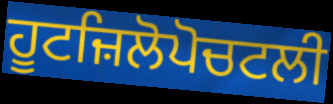
ਹੂਟਜ਼ਿਲੋਪੋਚਟਲੀ